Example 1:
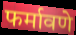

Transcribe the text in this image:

फर्मावणे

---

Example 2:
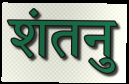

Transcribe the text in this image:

शंतनु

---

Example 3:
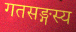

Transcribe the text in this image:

गतसङ्गस्य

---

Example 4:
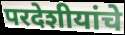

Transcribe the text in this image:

परदेशीयांचे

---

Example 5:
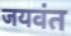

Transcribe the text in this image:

जयवंत